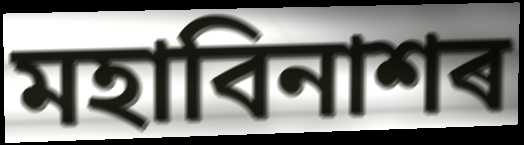
মহাবিনাশৰ